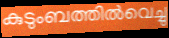
കുടുംബത്തിൽവെച്ചു